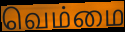
வெம்மை